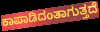
ಕಾಪಾಡಿದಂತಾಗುತ್ತದೆ